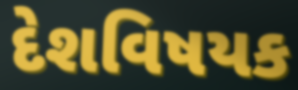
દેશવિષયક